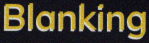
Blanking